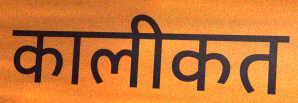
कालीकत